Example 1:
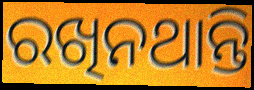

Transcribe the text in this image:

ରଖିନଥାନ୍ତି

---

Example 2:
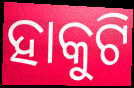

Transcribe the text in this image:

ହାକୁଟି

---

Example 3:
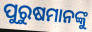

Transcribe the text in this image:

ପୁରୁଷମାନଙ୍କୁ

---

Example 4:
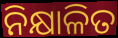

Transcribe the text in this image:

ନିକ୍ଷାଳିତ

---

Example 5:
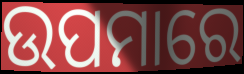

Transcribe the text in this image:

ଉପମାରେ